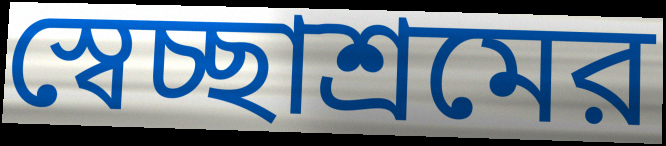
স্বেচ্ছাশ্রমের